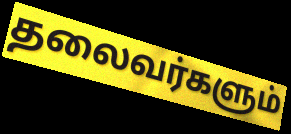
தலைவர்களும்